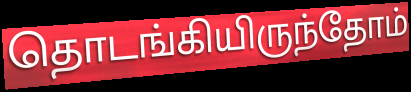
தொடங்கியிருந்தோம்